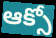
ఆక్సో